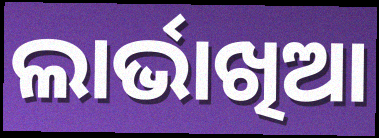
ଲାର୍ଭାଖିଆ